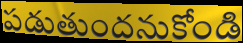
పడుతుందనుకోండి